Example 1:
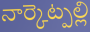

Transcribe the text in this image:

నార్కెట్పల్లి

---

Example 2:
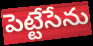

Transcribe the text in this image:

పెట్టేసేను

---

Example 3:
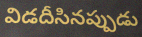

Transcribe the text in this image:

విడదీసినప్పుడు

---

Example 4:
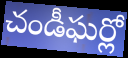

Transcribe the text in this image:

చండీఘర్లో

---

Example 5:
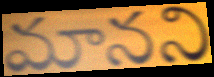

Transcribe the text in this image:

మానని